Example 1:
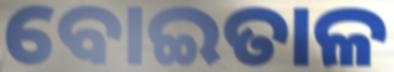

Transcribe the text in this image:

ବୋଇତାଳ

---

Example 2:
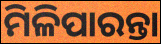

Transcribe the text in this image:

ମିଳିପାରନ୍ତା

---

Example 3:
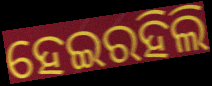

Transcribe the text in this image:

ହେଇରହିଲି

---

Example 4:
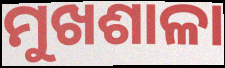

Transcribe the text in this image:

ମୁଖଶାଳା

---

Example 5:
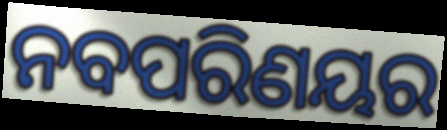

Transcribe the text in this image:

ନବପରିଣୟର